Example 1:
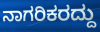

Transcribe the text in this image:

ನಾಗರಿಕರದ್ದು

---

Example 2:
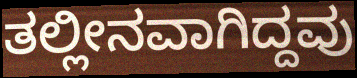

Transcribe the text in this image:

ತಲ್ಲೀನವಾಗಿದ್ದವು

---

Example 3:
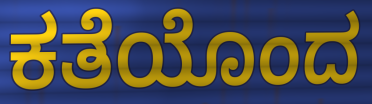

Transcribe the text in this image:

ಕತೆಯೊಂದ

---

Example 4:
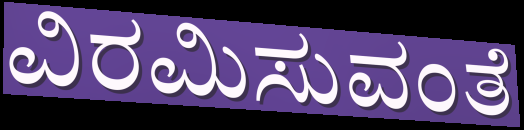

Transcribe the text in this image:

ವಿರಮಿಸುವಂತೆ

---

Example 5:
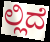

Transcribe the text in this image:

ಲ್ಲಿದೆ